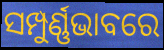
ସମ୍ପୁର୍ଣ୍ଣଭାବରେ